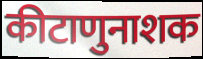
कीटाणुनाशक